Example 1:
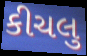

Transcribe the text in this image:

કીચલુ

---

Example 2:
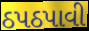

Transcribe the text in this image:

ઠપઠપાવી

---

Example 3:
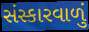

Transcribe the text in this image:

સંસ્કારવાળું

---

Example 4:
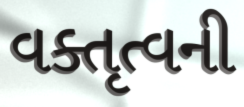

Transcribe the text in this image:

વક્તૃત્વની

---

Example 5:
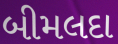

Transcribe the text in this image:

બીમલદા